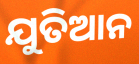
ଯୁତିଆନ